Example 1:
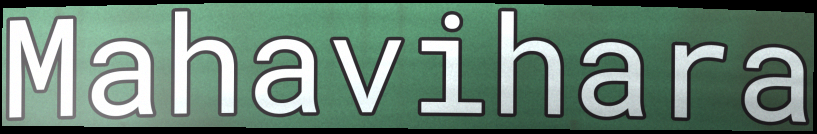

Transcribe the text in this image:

Mahavihara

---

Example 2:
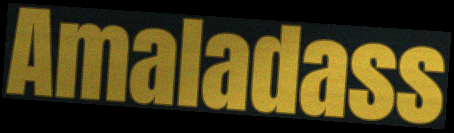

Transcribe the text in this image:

Amaladass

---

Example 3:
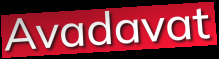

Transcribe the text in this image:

Avadavat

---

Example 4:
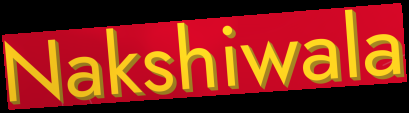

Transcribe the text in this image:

Nakshiwala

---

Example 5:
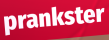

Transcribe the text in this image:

prankster